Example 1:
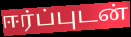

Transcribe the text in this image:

ஈர்ப்புடன்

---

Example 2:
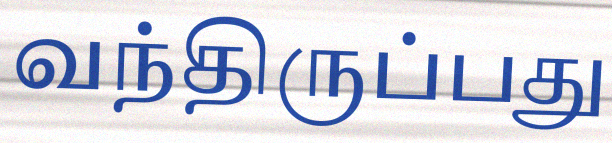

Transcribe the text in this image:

வந்திருப்பது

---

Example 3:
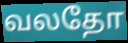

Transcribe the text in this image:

வலதோ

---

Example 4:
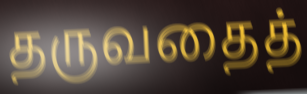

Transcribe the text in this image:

தருவதைத்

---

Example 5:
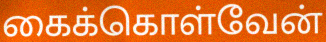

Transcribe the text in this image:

கைக்கொள்வேன்